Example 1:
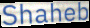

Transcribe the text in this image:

Shaheb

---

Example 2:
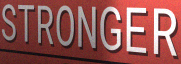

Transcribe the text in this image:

STRONGER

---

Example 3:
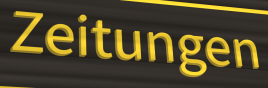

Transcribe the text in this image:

Zeitungen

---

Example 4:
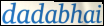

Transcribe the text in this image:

dadabhai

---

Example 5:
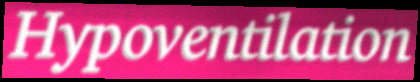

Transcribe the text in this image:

Hypoventilation